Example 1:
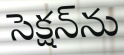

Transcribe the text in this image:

సెక్షన్‌ను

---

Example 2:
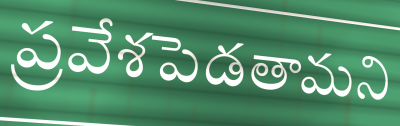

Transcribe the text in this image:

ప్రవేశపెడతామని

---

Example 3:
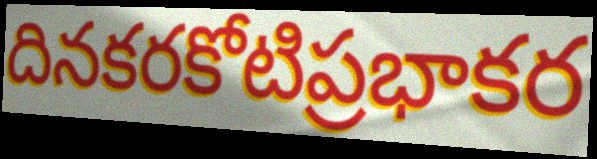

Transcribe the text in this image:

దినకరకోటిప్రభాకర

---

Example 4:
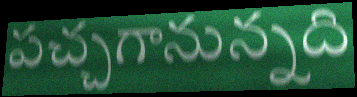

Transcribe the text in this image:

పచ్చగానున్నది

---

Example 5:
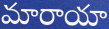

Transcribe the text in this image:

మారాయా